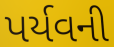
પર્યવની